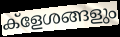
ക്ളേശങ്ങളും